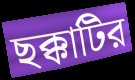
ছক্কাটির